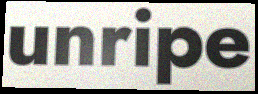
unripe